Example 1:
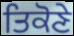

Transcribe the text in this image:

ਤਿਕੋਣੇ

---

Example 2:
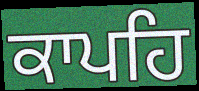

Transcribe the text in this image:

ਕਾਪਹਿ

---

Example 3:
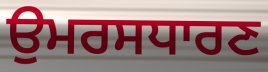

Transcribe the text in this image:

ਉਮਰਸਧਾਰਣ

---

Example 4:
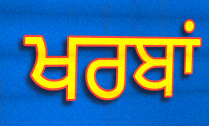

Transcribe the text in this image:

ਖਰਬਾਂ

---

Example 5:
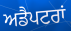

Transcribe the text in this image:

ਅਡੈਪਟਰਾਂ